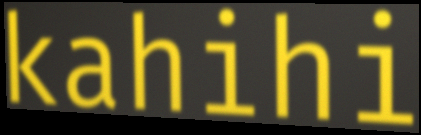
kahihi